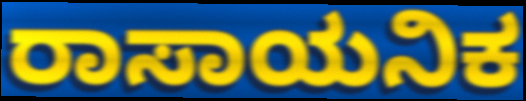
ರಾಸಾಯನಿಕ